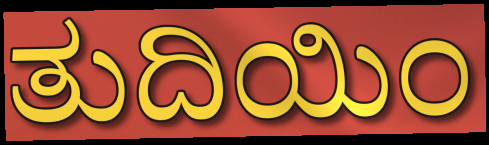
ತುದಿಯಿಂ